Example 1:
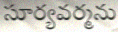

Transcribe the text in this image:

సూర్యవర్మను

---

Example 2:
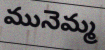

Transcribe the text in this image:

మునెమ్మ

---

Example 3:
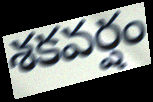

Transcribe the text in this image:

శకవర్షం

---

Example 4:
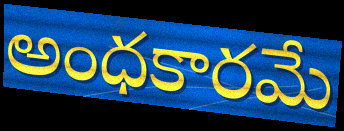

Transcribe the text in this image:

అంధకారమే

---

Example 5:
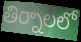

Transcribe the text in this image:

తిర్నాలలో